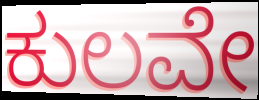
ಕುಲವೇ